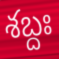
శబ్దః